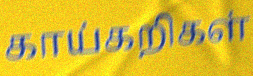
காய்கறிகள்